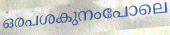
ഒരപശകുനംപോലെ